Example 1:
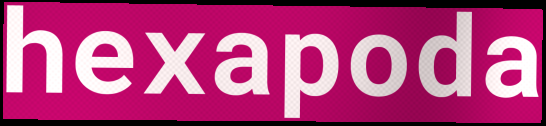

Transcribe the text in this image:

hexapoda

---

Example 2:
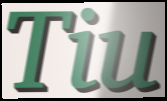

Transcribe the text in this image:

Tiu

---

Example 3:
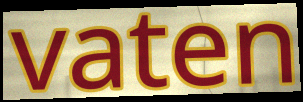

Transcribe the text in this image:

vaten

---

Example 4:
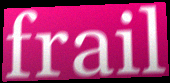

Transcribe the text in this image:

frail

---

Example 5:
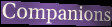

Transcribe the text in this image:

Companions